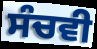
ਸੰਚਵੀ